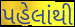
પહેલાંથી